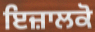
ਇਜ਼ਾਲਕੋ